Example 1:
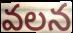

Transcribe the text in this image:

వలన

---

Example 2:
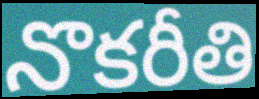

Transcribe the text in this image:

నొకరీతి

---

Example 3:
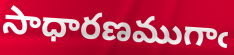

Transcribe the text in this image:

సాధారణముగాఁ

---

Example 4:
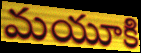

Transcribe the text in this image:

మయూకి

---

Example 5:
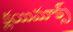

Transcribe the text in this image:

క్లయిమాక్స్